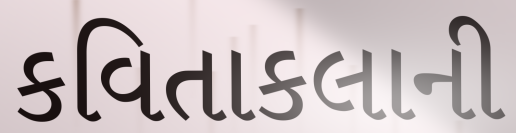
કવિતાકલાની